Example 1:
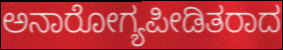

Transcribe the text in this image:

ಅನಾರೋಗ್ಯಪೀಡಿತರಾದ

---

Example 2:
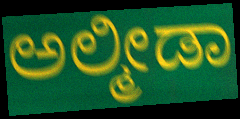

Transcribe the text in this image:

ಅಲ್ಮೀಡಾ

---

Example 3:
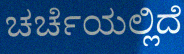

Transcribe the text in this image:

ಚರ್ಚೆಯಲ್ಲಿದೆ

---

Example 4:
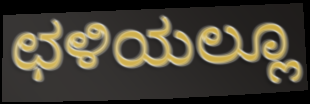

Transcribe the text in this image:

ಛಳಿಯಲ್ಲೂ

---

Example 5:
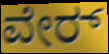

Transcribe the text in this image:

ವೇರ್‍